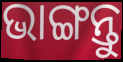
ଭାଙ୍ଗନ୍ତୁ